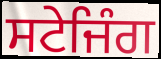
ਸਟੇਜਿੰਗ